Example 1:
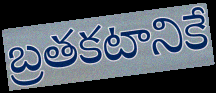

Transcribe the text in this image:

బ్రతకటానికే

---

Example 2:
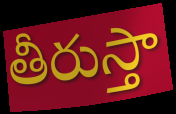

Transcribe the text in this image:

తీరుస్తా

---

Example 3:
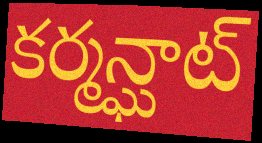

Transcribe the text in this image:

కర్మన్ఘాట్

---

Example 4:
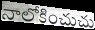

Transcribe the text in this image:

నాలోకించుచు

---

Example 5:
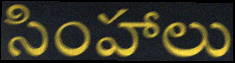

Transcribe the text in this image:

సింహాలు